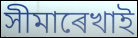
সীমাৰেখাই